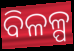
ବିଳଳ୍ପ